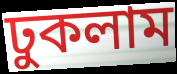
ঢুকলাম